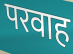
परवाह